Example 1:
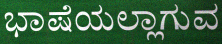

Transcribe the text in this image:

ಭಾಷೆಯಲ್ಲಾಗುವ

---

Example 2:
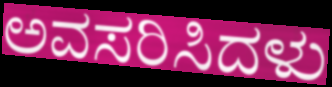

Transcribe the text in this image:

ಅವಸರಿಸಿದಳು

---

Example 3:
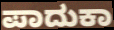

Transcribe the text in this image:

ಪಾದುಕಾ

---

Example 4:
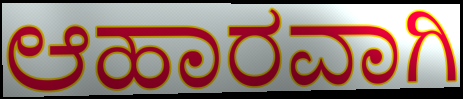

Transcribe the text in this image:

ಆಹಾರವಾಗಿ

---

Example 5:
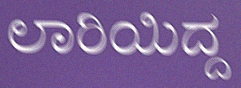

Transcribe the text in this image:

ಲಾರಿಯಿದ್ದ